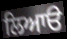
ਲਿਆੳ